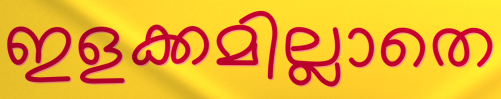
ഇളക്കമില്ലാതെ